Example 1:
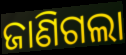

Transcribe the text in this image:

ଜାଣିଗଲା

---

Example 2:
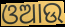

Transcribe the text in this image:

ଓଆଉ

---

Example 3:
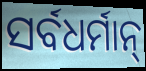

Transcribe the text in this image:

ସର୍ବଧର୍ମାନ୍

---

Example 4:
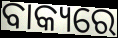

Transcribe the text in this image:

ବାକ୍ୟରେ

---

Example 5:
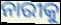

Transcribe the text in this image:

ନାରୀକୁ